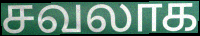
சவலாக